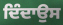
ਦਿੰਦਾਉਸ